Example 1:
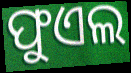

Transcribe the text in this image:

ଫୁଏଲ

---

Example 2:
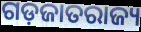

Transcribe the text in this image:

ଗଡ଼ଜାତରାଜ୍ୟ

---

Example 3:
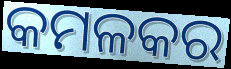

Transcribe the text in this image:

କମଳକର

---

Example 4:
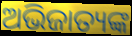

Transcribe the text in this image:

ଅଭିଜାତ୍ୟଙ୍କ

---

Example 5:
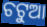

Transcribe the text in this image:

ଚଟୁଆ